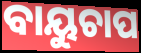
ବାୟୁଚାପ